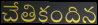
చేతికందిన